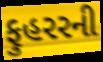
ફુહરરની